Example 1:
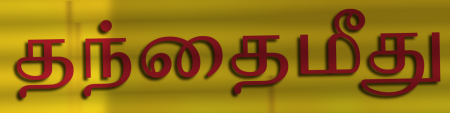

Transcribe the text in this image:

தந்தைமீது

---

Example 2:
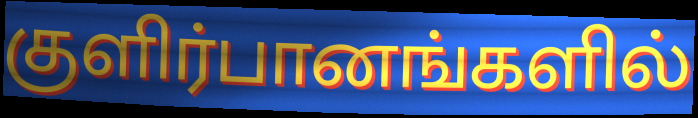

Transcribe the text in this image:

குளிர்பானங்களில்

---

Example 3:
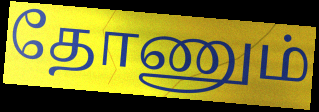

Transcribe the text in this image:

தோணும்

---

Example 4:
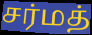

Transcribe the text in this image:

சர்மத்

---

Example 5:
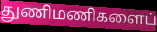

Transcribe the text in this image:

துணிமணிகளைப்